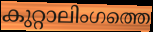
കുറ്റാലിംഗത്തെ